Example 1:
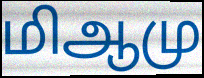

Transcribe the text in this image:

மிஆமு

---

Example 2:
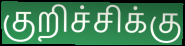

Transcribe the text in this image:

குறிச்சிக்கு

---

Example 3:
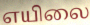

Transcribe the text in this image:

எயிலை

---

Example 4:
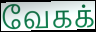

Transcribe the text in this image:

வேகக்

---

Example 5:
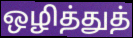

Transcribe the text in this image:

ஒழித்துத்